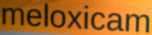
meloxicam